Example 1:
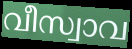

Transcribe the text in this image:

വീസ്വാവ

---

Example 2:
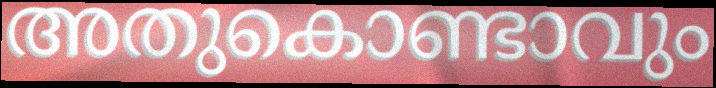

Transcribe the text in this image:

അതുകൊണ്ടാവും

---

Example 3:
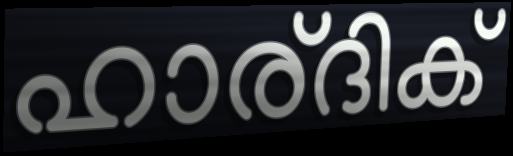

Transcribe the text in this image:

ഹാര്ദിക്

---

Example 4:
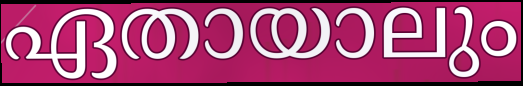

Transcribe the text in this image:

ഏതായാലും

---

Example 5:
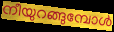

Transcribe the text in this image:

നീയുറങ്ങുമ്പോൾ